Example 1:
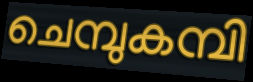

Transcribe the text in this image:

ചെമ്പുകമ്പി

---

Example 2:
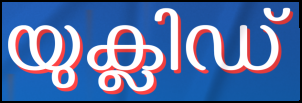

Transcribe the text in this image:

യുക്ലിഡ്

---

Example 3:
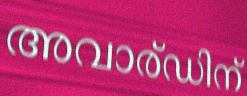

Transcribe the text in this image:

അവാര്ഡിന്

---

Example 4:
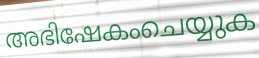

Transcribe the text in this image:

അഭിഷേകംചെയ്യുക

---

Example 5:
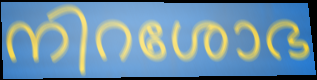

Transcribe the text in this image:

നിറശോഭ